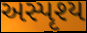
અસ્પૃશ્ય